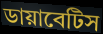
ডায়াবেটিস